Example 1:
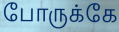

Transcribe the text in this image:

போருக்கே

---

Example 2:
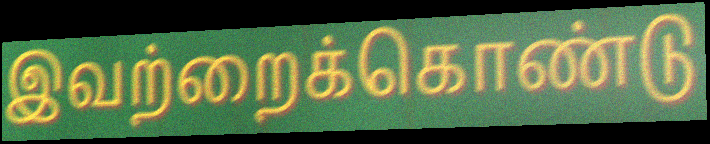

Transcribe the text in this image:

இவற்றைக்கொண்டு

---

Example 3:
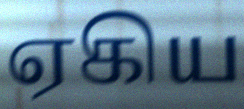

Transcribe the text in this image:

ஏகிய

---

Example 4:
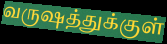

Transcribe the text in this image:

வருஷத்துக்குள்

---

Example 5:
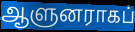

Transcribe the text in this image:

ஆளுனராகப்